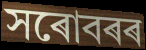
সৰোবৰৰ